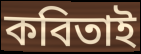
কবিতাই